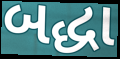
બદ્ધા